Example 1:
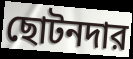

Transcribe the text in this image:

ছোটনদার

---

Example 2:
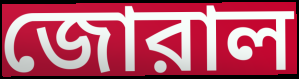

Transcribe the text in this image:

জোরাল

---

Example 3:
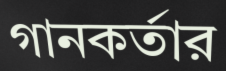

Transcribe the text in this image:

গানকর্তার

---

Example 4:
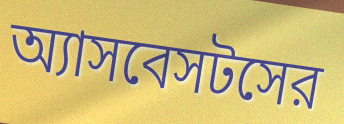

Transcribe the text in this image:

অ্যাসবেসটসের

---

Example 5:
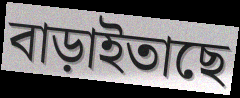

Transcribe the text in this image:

বাড়াইতাছে